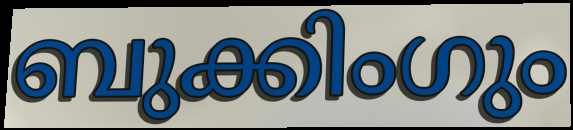
ബുക്കിംഗും